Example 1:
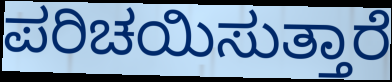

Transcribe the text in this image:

ಪರಿಚಯಿಸುತ್ತಾರೆ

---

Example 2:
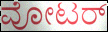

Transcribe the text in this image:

ವೋಟರ್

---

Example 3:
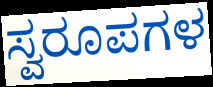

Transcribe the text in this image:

ಸ್ವರೂಪಗಳ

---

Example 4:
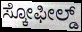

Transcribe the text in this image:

ಸ್ಕೋಫೀಲ್ಡ್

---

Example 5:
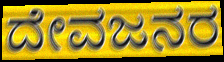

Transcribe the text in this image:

ದೇವಜನರ